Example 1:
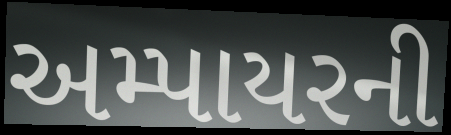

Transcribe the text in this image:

અમ્પાયરની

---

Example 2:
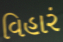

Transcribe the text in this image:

વિહારં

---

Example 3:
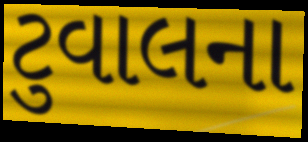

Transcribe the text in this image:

ટુવાલના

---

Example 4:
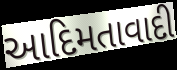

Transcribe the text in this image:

આદિમતાવાદી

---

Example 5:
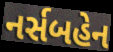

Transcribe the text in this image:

નર્સબહેન